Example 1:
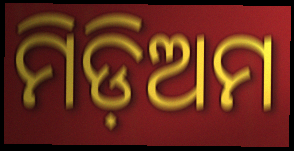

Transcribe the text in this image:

ମିଡ଼ିଅମ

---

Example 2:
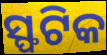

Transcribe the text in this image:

ସ୍ଫଟିକ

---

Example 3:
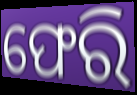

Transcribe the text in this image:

ଫେରି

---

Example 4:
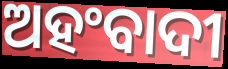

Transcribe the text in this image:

ଅହଂବାଦୀ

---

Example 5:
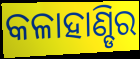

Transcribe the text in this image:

କଳାହାଣ୍ଡିର